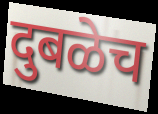
दुबळेच